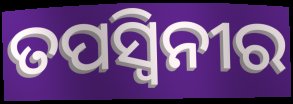
ତପସ୍ୱିନୀର